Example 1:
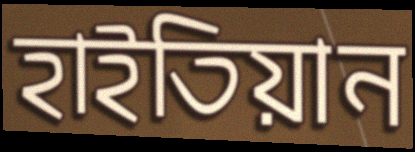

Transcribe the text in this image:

হাইতিয়ান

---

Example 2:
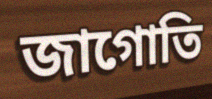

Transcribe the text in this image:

জাগোতি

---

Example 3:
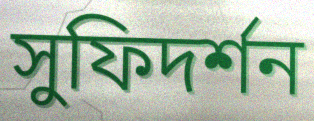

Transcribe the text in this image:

সুফিদর্শন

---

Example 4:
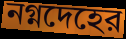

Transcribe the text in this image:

নগ্নদেহের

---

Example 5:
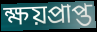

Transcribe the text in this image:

ক্ষয়প্রাপ্ত